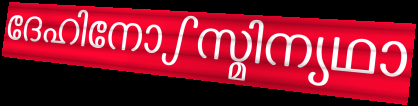
ദേഹിനോഽസ്മിന്യഥാ